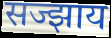
सज्झाय